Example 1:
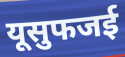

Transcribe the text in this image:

यूसुफजई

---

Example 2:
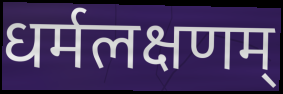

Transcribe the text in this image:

धर्मलक्षणम्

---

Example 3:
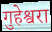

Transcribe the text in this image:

गुहेश्वरा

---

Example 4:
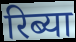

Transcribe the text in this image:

रिब्या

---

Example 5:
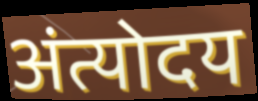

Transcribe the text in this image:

अंत्योदय